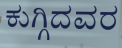
ಕುಗ್ಗಿದವರ